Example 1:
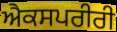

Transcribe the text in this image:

ਐਕਸਪਰੀਰੀ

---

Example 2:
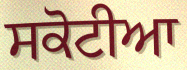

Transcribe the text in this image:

ਸਕੋਟੀਆ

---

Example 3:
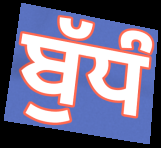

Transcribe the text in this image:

ਬੁੱਧੰ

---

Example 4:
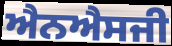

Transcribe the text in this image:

ਐਨਐਸਜੀ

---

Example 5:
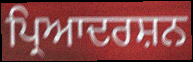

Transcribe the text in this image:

ਪ੍ਰਿਆਦਰਸ਼ਨ